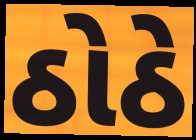
ઠોઠે